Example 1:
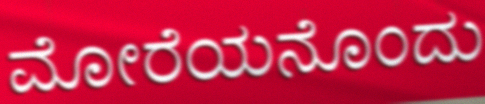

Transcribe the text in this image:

ಮೋರೆಯನೊಂದು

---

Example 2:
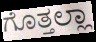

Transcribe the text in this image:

ಗೊತ್ತಲ್ಲಾ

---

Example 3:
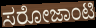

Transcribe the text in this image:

ಸರೋಜಾಂಟಿ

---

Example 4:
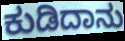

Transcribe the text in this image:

ಕುಡಿದಾನು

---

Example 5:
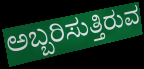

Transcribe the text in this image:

ಅಬ್ಬರಿಸುತ್ತಿರುವ